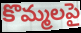
కొమ్మలపై